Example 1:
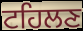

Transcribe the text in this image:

ਟਹਿਲਣ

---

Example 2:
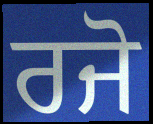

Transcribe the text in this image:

ਰਜੋ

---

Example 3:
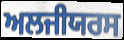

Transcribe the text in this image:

ਅਲਜੀਯਰਸ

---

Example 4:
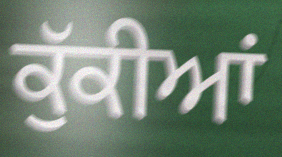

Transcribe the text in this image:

ਕੁੱਕੀਆਂ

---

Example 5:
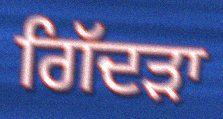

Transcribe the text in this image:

ਗਿੱਦੜਾ